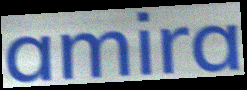
amira